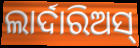
ଲାର୍ଦାରିଅସ୍